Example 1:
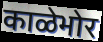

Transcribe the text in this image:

काळेभोर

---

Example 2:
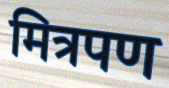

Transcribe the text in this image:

मित्रपण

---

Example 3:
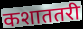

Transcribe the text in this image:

कशाततरी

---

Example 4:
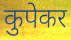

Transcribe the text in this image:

कुपेकर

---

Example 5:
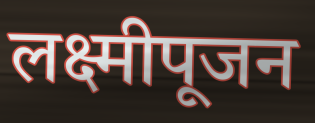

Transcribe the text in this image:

लक्ष्मीपूजन